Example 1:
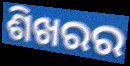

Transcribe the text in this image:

ଶିଖରର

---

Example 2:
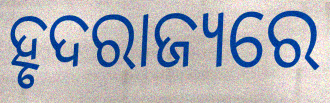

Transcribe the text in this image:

ହୃଦରାଜ୍ୟରେ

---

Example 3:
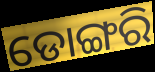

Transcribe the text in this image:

ଡୋଙ୍ଗରି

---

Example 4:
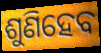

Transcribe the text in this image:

ଶୁଣିହେବ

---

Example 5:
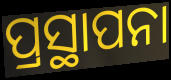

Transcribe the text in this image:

ପ୍ରସ୍ଥାପନା